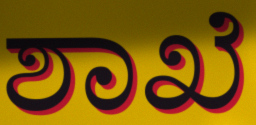
ಶಾಖೆ